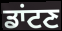
ਡਾਂਟਣ